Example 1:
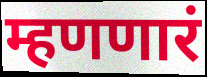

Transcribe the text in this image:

म्हणणारं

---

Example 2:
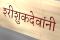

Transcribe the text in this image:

श्रीशुकदेवांनी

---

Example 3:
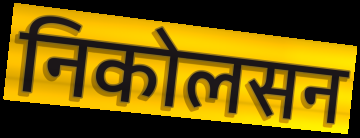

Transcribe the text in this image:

निकोलसन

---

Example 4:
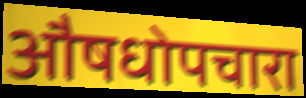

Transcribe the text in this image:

औषधोपचारा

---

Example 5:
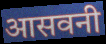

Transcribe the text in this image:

आसवनी